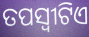
ତପସ୍ୱୀଟିଏ